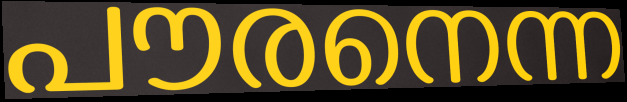
പൗരനെന്ന